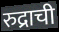
रुद्राची